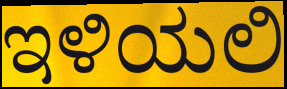
ಇಳಿಯಲಿ